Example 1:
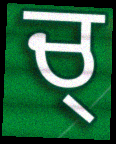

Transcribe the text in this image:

ਚ੍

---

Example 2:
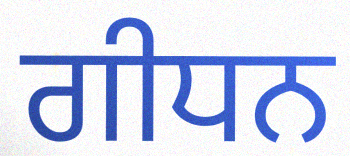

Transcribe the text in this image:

ਗੀਧਨ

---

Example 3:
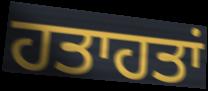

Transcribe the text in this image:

ਹਤਾਹਤਾਂ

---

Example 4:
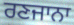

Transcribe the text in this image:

ਰਣਜਾਨਾ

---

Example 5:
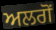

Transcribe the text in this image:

ਅਲਗੋਂ